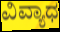
ವಿವ್ಯಾಧ